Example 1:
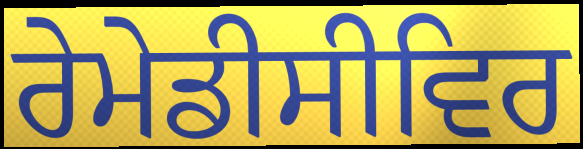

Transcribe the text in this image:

ਰੇਮੇਡੀਸੀਵਿਰ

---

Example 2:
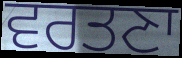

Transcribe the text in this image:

ਵਰਤਣਾ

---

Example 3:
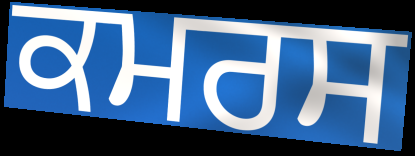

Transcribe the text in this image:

ਕਮਰਸ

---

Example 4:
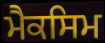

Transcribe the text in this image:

ਮੈਕਸਿਮ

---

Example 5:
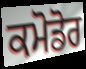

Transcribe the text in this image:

ਕਮੋਡੋਰ